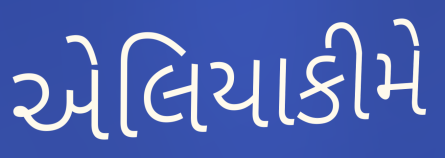
એલિયાકીમે